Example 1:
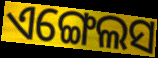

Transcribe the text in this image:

ଏଙ୍ଗେଲସ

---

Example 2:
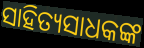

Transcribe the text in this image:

ସାହିତ୍ୟସାଧକଙ୍କ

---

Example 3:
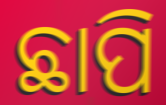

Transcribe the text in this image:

ଛାପି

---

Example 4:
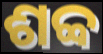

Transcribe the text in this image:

ଶବ୍ବ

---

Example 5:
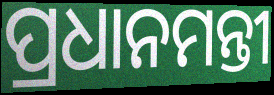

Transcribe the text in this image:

ପ୍ରଧାନମନ୍ତୀ